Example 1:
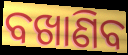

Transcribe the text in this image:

ବଖାଣିବ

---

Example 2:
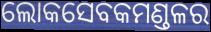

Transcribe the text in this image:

ଲୋକସେବକମଣ୍ଡଳର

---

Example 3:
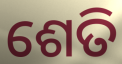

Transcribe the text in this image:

ଶେତି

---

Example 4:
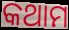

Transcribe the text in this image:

କଥାମ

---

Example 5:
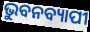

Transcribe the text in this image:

ଭୁବନବ୍ୟାପୀ